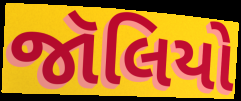
જૉલિયો